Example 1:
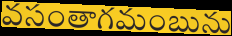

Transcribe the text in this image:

వసంతాగమంబును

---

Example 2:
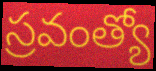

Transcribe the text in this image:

స్రవంత్యో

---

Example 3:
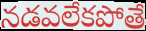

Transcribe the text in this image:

నడవలేకపోతే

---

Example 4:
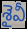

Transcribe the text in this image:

శైవీ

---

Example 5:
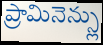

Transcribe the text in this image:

ప్రామినెన్స్లు